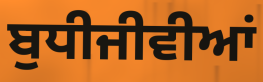
ਬੁਧੀਜੀਵੀਆਂ